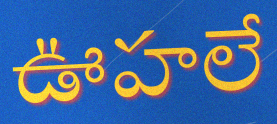
ఊహలే